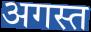
अगस्‍त